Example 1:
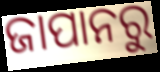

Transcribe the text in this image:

ଜାପାନରୁ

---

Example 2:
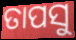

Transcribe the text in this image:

ତାପସୁ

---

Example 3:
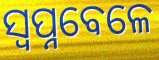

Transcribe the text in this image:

ସ୍ଵପ୍ନବେଳେ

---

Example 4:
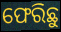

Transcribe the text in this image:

ଫେରିଛୁ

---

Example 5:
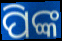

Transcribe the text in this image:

ପିଙ୍କ